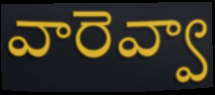
వారెవ్వా